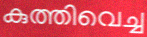
കുത്തിവെച്ച